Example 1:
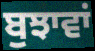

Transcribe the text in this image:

ਬੁਝਾਵਾਂ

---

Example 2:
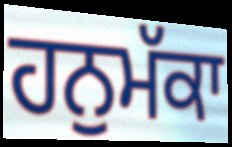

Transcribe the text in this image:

ਹਨੁਮੱਕਾ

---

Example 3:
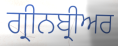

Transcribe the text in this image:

ਗ੍ਰੀਨਬ੍ਰੀਅਰ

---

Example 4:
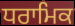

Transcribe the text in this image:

ਧਰਾਮਿਕ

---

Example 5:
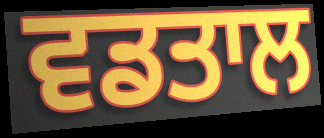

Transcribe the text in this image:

ਵਡਤਾਲ